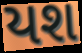
યશ